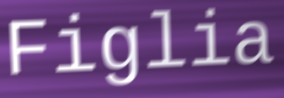
Figlia